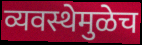
व्यवस्थेमुळेच